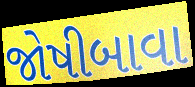
જોષીબાવા